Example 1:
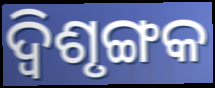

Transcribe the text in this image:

ଦ୍ବିଶୃଙ୍ଗକ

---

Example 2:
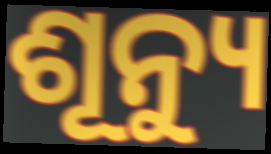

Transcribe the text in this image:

ଶୂନ୍ୟୁ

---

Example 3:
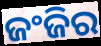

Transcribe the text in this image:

ଜଂଜିର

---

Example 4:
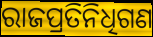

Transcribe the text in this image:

ରାଜପ୍ରତିନିଧିଗଣ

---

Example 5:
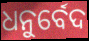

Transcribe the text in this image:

ଧନୁର୍ବେଦ